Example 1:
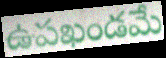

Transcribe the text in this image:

ఉపఖండమే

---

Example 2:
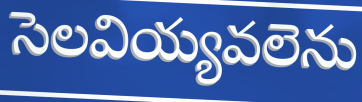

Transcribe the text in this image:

సెలవియ్యవలెను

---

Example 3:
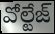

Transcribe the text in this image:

వోల్టేజ్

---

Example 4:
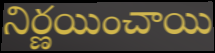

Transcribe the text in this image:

నిర్ణయించాయి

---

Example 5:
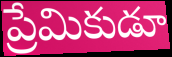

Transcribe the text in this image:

ప్రేమికుడూ